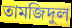
তামজিদুল